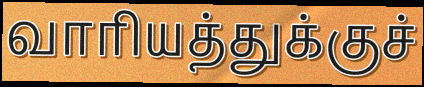
வாரியத்துக்குச்